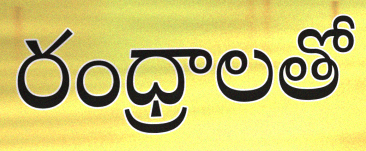
రంధ్రాలతో